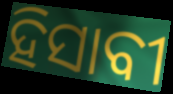
ହିସାବୀ